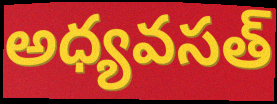
అధ్యవసత్